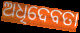
ଅଧିଦେବତା